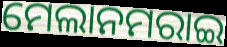
ମେଲାନମରାଇ